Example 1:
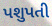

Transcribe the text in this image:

પશુપતી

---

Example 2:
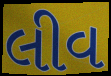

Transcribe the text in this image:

લીવ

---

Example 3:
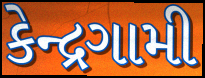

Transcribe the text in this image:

કેન્દ્રગામી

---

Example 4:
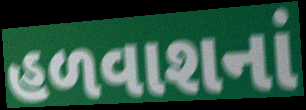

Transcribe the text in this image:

હળવાશનાં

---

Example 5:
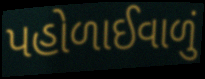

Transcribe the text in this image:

પહોળાઈવાળું